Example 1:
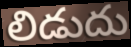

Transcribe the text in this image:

లిడుదు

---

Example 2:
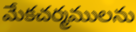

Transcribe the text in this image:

మేకచర్మములను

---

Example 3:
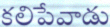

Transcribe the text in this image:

కలిపేవాడు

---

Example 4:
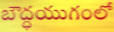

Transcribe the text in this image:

బౌద్ధయుగంలో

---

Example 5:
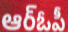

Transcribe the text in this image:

ఆర్ఓపీ